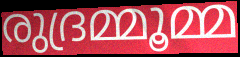
രുദ്രമ്മൂമ്മ